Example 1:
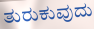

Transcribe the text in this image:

ತುರುಕುವುದು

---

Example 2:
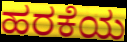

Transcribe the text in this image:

ಹರಕೆಯ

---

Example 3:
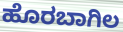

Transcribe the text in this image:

ಹೊರಬಾಗಿಲ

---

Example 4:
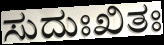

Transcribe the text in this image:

ಸುದುಃಖಿತಃ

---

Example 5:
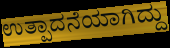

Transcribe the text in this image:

ಉತ್ಪಾದನೆಯಾಗಿದ್ದು